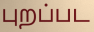
புறப்பட